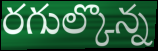
రగుల్కొన్న